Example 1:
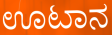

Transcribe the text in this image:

ಊಟಾನ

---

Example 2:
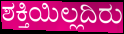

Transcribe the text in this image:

ಶಕ್ತಿಯಿಲ್ಲದಿರು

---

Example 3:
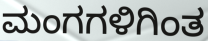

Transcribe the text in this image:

ಮಂಗಗಳಿಗಿಂತ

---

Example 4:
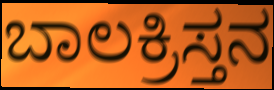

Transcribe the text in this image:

ಬಾಲಕ್ರಿಸ್ತನ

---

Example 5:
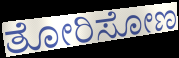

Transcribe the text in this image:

ತೋರಿಸೋಣ